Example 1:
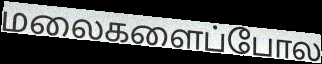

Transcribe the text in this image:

மலைகளைப்போல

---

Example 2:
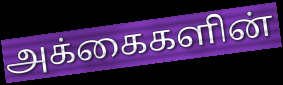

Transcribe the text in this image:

அக்கைகளின்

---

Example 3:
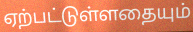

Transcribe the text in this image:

ஏற்பட்டுள்ளதையும்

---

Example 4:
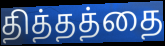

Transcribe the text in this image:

தித்தத்தை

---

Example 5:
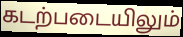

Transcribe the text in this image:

கடற்படையிலும்